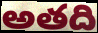
అతది